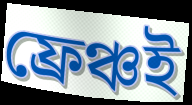
ফ্রেঞ্চই